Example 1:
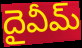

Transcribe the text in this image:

దైవీమ్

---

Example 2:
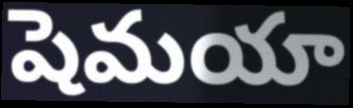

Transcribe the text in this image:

షెమయా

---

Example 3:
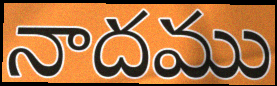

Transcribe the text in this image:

నాదము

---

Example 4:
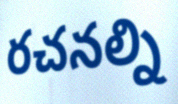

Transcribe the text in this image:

రచనల్ని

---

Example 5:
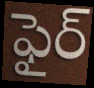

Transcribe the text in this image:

ఫైర్